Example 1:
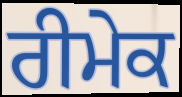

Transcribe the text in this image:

ਰੀਮੇਕ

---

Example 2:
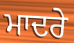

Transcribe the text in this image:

ਮਾਦਰੇ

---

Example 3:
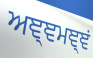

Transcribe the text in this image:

ਅਞ੍ਞਮਞ੍ਞਂ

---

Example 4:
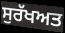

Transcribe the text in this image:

ਸੁਰੱਖਅਤ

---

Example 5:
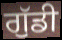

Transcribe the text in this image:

ਗੁੱਡੀ